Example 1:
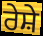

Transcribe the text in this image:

ਰੇਸ਼ੇ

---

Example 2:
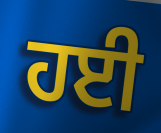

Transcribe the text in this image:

ਹਈ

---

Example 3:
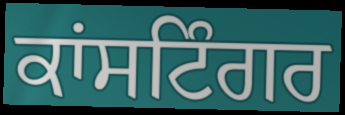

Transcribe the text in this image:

ਕਾਂਸਟਿੰਗਰ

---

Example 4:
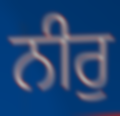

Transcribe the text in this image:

ਨੀਰੁ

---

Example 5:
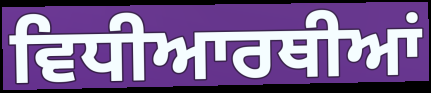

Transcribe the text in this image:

ਵਿਧੀਆਰਥੀਆਂ